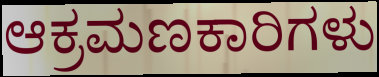
ಆಕ್ರಮಣಕಾರಿಗಳು